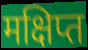
मक्षिप्त